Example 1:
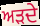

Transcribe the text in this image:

ਅੜਦੇ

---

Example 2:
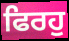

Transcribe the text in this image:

ਫਿਰਹੁ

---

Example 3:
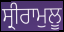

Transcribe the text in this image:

ਸ੍ਰੀਰਾਮੁਲੂ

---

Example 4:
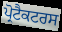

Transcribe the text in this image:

ਪ੍ਰੋਟੈਕਟਰਸ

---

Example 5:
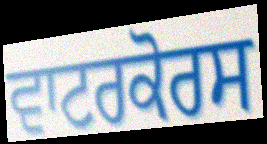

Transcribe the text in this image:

ਵਾਟਰਕੋਰਸ